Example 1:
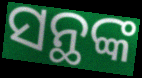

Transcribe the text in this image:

ସନ୍ଥଙ୍କ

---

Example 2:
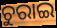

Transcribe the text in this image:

ଚୁରାଇ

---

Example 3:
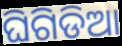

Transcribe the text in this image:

ଘିଗିଡିଆ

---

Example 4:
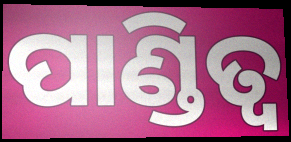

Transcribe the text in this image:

ପାଣ୍ଡିତ୍ୱ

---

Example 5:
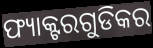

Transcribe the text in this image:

ଫ୍ୟାକ୍ଟରଗୁଡିକର